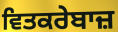
ਵਿਤਕਰੇਬਾਜ਼